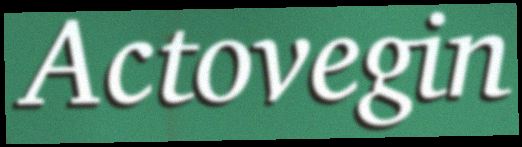
Actovegin